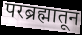
परब्रह्मातून